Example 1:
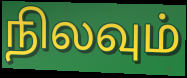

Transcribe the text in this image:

நிலவும்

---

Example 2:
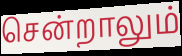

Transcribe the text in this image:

சென்றாலும்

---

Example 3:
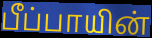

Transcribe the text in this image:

பீப்பாயின்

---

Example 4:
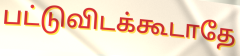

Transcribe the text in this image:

பட்டுவிடக்கூடாதே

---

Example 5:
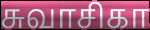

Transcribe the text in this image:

சுவாசிகா